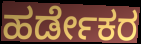
ಹರ್ಡೇಕರ